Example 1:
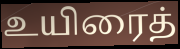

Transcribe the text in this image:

உயிரைத்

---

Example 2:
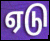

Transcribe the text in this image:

ஏடு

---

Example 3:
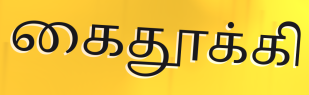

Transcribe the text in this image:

கைதூக்கி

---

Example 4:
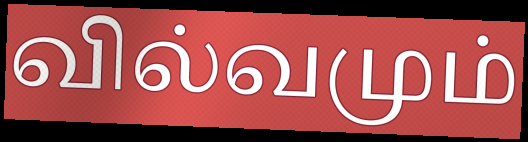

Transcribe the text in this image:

வில்வமும்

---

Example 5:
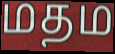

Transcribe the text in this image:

மதம